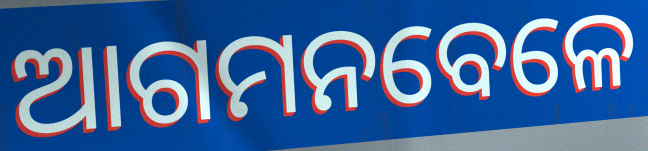
ଆଗମନବେଳେ